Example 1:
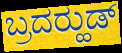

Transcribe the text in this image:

ಬ್ರದರ್‍ಹುಡ್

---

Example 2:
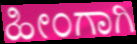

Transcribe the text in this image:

ಹೀಂಗಾಗಿ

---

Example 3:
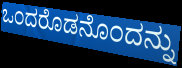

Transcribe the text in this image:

ಒಂದರೊಡನೊಂದನ್ನು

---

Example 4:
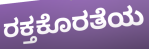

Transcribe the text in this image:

ರಕ್ತಕೊರತೆಯ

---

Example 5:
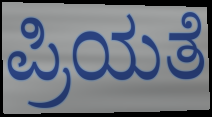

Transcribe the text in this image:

ಪ್ರಿಯತೆ